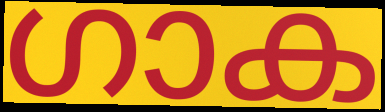
ഗാക